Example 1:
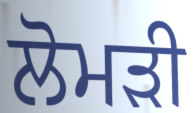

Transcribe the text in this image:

ਲੋਮੜੀ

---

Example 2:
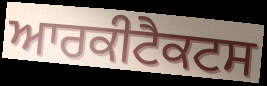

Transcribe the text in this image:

ਆਰਕੀਟੈਕਟਸ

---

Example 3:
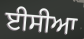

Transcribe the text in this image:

ਈਸੀਆ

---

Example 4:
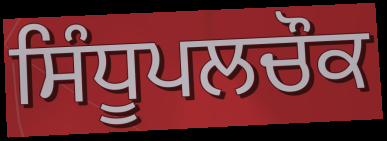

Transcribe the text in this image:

ਸਿੰਧੂਪਲਚੌਕ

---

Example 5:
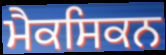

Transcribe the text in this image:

ਮੈਕਸਿਕਨ